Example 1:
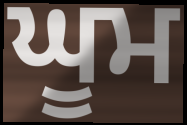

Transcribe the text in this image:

ਘੂਮ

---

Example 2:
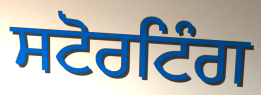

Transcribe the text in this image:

ਸਟੋਰਟਿੰਗ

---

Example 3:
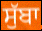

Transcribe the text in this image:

ਸੁੱਬਾ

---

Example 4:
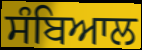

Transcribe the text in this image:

ਸੰਬਿਆਲ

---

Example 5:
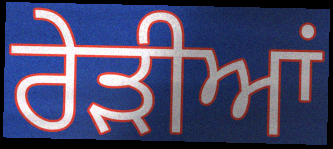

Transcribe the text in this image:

ਰੇੜੀਆਂ